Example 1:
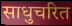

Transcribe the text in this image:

साधुचरित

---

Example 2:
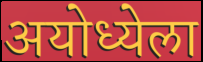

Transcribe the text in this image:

अयोध्येला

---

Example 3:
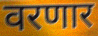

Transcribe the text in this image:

वरणार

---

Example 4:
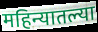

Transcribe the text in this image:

महिन्यातल्या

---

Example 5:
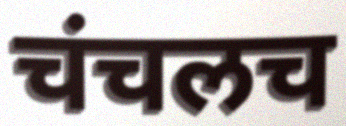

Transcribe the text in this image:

चंचलच